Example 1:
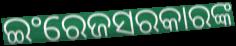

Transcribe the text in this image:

ଇଂରେଜସରକାରଙ୍କ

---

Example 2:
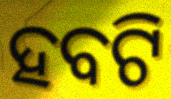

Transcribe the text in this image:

ହବଟି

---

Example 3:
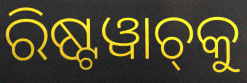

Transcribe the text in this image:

ରିଷ୍ଟୱାଚ୍‌କୁ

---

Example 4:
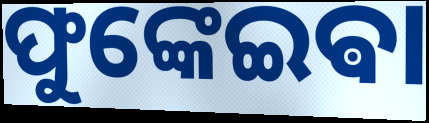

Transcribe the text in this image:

ଫୁଙ୍କେଇଵା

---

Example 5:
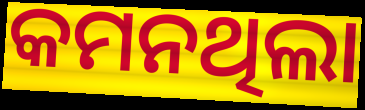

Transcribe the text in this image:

କମନଥିଲା